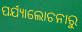
ପର୍ଯ୍ୟାଲୋଚନାରୁ